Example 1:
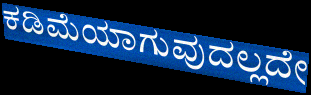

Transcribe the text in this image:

ಕಡಿಮೆಯಾಗುವುದಲ್ಲದೇ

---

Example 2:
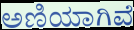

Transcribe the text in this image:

ಅಣಿಯಾಗಿವೆ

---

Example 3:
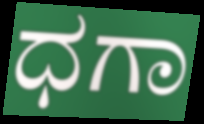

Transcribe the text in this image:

ಧಗಾ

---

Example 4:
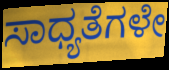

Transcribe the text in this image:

ಸಾಧ್ಯತೆಗಳೇ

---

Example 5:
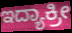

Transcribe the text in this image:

ಇದ್ಯಾಕ್ರೀ